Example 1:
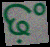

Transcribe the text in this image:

ଢ଼ଂ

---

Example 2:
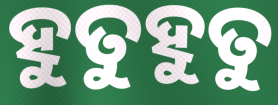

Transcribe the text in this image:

ହୁତୁହୁତୁ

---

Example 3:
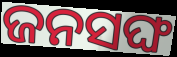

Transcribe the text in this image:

ଜନସଙ୍ଘ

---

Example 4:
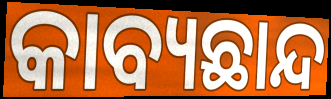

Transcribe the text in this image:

କାବ୍ୟଛାନ୍ଦ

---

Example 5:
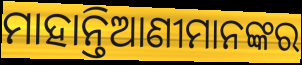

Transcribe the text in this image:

ମାହାନ୍ତିଆଣୀମାନଙ୍କର